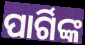
ପାର୍ଗିଙ୍କ